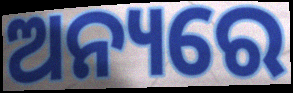
ଅନ୍ୟରେ